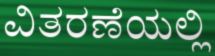
ವಿತರಣೆಯಲ್ಲಿ